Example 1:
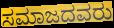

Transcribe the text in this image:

ಸಮಾಜದವರು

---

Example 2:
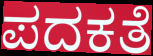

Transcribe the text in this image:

ಪದಕತೆ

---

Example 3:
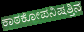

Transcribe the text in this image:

ಕಾಠಕೋಪನಿಷತ್ತಿನ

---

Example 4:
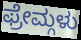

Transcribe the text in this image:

ಫ್ರೇಮ್ಗಳು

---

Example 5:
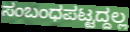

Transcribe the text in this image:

ಸಂಬಂಧಪಟ್ಟದ್ದಲ್ಲ